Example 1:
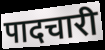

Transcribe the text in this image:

पादचारी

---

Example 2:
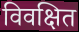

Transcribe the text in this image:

विवक्षित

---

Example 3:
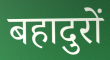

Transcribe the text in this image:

बहादुरों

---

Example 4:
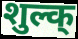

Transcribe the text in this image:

शुल्क्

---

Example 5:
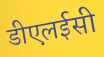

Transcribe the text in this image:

डीएलईसी